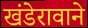
खंडेरावाने